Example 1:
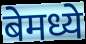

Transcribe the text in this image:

बेमध्ये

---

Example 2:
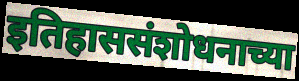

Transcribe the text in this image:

इतिहाससंशोधनाच्या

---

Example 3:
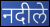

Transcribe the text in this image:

नदीले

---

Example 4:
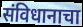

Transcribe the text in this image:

संविधानाचा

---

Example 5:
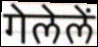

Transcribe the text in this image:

गेलेलें